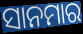
ସାନମାର